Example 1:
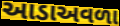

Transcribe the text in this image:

આડાઅવળા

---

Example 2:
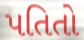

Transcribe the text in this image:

પતિતો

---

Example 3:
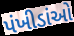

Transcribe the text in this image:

પંખીડાંઓ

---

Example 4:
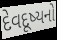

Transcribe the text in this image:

દેવદૂષ્યનો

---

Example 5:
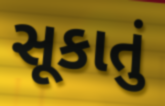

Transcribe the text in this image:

સૂકાતું